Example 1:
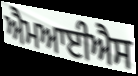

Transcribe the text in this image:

ਐਮਆਈਐਸ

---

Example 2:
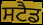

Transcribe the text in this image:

ਸਟੈਡ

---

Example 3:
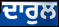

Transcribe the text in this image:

ਦਾਰੁਲ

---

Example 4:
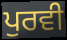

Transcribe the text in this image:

ਪੁਰਵੀ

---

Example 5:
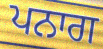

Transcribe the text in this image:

ਪਨਾਗ